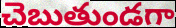
చెబుతుండగా